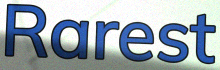
Rarest